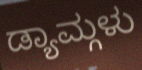
ಡ್ಯಾಮ್ಗಳು